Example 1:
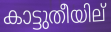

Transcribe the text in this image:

കാട്ടുതീയില്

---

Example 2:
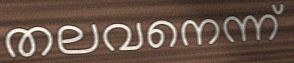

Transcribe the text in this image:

തലവനെന്ന്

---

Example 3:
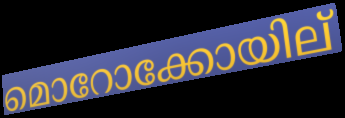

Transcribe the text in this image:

മൊറോക്കോയില്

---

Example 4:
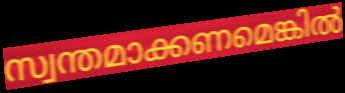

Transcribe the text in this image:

സ്വന്തമാക്കണമെങ്കിൽ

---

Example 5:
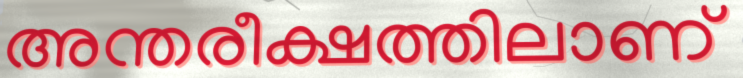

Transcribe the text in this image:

അന്തരീക്ഷത്തിലാണ്